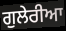
ਗੁਲੇਰੀਆ